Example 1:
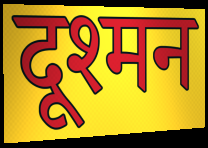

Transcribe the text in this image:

दूश्मन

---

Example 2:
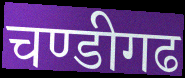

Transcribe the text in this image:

चण्डीगढ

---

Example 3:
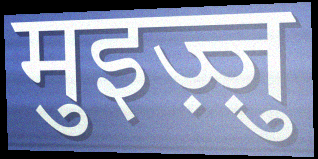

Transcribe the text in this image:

मुइज़्ज़ु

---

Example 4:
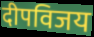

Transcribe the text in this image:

दीपविजय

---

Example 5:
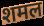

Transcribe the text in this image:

शमल